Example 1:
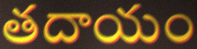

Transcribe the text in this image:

తదాయం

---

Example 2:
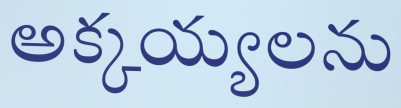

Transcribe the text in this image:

అక్కయ్యలను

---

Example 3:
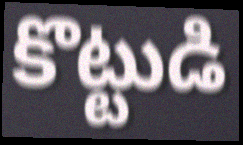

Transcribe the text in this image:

కొట్టుడి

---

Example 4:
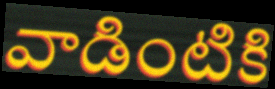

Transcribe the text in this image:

వాడింటికి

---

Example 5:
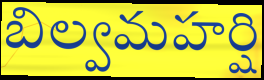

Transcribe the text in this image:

బిల్వమహర్షి